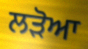
ਲੜੋਆ